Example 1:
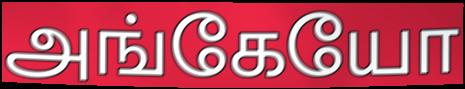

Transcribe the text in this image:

அங்கேயோ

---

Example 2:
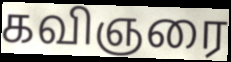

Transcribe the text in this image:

கவிஞரை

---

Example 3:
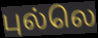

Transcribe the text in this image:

புல்லெ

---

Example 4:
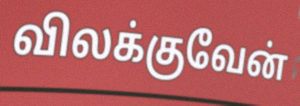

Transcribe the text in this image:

விலக்குவேன்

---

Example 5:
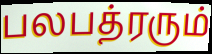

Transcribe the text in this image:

பலபத்ரரும்